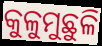
କୁଳୁମୁଛୁଳି